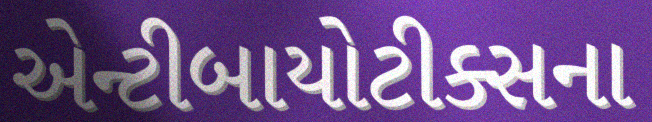
એન્ટીબાયોટીક્સના